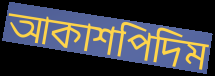
আকাশপিদিম